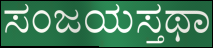
ಸಂಜಯಸ್ತಥಾ